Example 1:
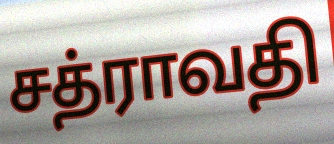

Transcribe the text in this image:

சத்ராவதி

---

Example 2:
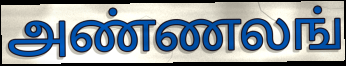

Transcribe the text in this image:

அண்ணலங்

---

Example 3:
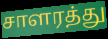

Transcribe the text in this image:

சாளரத்து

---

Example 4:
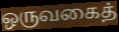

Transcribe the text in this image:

ஒருவகைத்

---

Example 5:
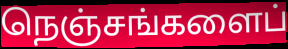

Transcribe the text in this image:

நெஞ்சங்களைப்